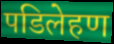
पडिलेहण